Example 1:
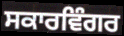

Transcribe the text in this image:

ਸਕਾਰਵਿੰਗਰ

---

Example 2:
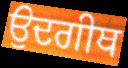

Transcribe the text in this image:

ਉਦਗੀਥ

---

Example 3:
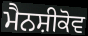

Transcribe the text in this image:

ਮੈਨਸ਼ੀਕੋਵ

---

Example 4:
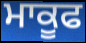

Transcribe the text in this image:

ਮਾਕੂਫ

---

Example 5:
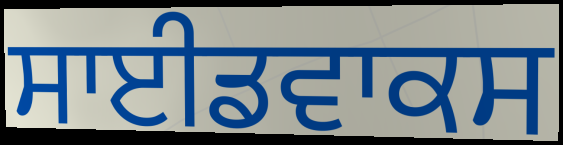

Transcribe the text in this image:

ਸਾਈਡਵਾਕਸ